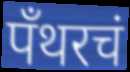
पँथरचं